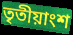
তৃতীয়াংশ